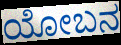
ಯೋಬನ